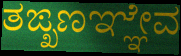
ತಙ್ಖಣಞ್ಞೇವ